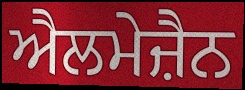
ਐਲਮੇਜ਼ੈਨ